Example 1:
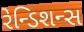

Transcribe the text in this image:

રેન્ડિશન્સ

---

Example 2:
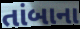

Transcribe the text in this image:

તાંબાના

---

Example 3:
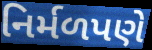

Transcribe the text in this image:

નિર્મળપણે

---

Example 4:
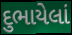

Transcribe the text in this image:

દુભાયેલાં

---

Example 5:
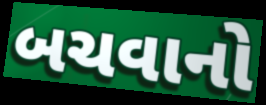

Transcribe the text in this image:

બચવાનો